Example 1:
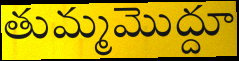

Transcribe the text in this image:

తుమ్మమొద్దూ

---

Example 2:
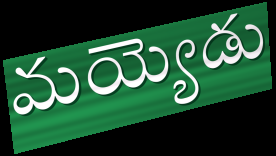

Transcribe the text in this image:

మయ్యెడు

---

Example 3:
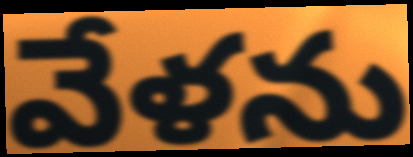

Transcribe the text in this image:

వేళను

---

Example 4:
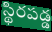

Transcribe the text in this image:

స్థిరపడ్డ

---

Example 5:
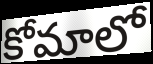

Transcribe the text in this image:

కోమాలో